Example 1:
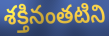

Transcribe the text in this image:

శక్తినంతటిని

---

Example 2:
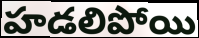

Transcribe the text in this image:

హడలిపోయి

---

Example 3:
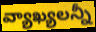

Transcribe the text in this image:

వ్యాఖ్యలన్నీ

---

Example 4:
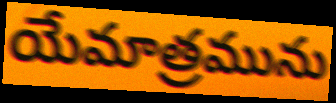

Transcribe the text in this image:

యేమాత్రమును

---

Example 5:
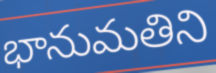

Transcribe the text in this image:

భానుమతిని